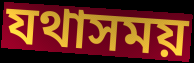
যথাসময়